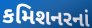
કમિશનરનાં